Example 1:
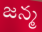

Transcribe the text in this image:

జన్మ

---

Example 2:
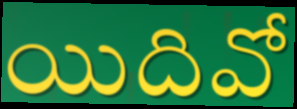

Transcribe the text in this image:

యిదివో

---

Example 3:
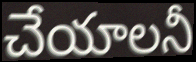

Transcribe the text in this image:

చేయాలనీ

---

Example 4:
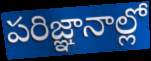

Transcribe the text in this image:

పరిజ్ఞానాల్లో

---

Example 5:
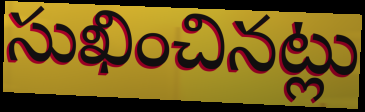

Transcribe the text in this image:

సుఖించినట్లు